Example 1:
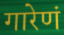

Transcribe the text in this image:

गारेणं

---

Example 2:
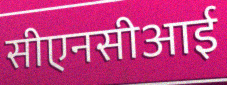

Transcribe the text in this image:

सीएनसीआई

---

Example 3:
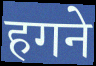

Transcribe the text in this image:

हगने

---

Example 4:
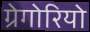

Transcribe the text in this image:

ग्रेगोरियो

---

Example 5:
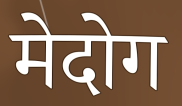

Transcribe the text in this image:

मेदोग